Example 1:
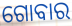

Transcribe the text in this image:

ଗୋବାର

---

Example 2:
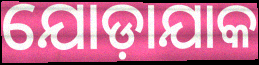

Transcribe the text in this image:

ଯୋଡ଼ାଯାକ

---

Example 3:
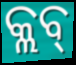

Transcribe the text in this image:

କ୍ଲବ୍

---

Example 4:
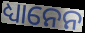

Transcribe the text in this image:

ଧ୍ୟାନେନ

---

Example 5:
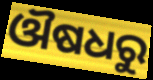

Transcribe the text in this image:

ଔଷଧରୁ